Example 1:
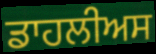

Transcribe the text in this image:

ਡਾਹਲੀਅਸ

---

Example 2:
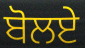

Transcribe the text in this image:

ਬੋਲਏ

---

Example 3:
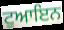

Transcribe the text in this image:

ਟੁਆਇਨ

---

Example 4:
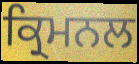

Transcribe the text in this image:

ਕ੍ਰਿਮਨਲ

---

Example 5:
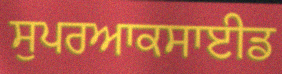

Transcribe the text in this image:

ਸੁਪਰਆਕਸਾਈਡ